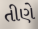
તીણે